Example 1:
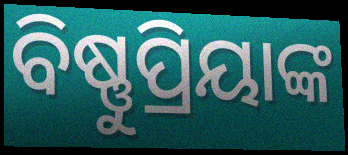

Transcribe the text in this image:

ବିଷ୍ଣୁପ୍ରିୟାଙ୍କ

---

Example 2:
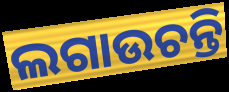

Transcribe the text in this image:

ଲଗାଉଚନ୍ତି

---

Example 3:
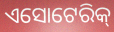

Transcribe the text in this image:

ଏସୋଟେରିକ୍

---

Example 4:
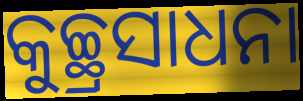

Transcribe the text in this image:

କୁଚ୍ଛ୍ରସାଧନା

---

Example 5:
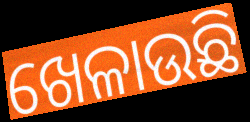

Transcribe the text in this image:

ଖେଳାଉଛି